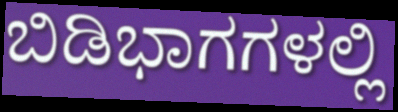
ಬಿಡಿಭಾಗಗಳಲ್ಲಿ